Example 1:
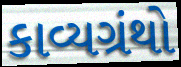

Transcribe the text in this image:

કાવ્યગ્રંથો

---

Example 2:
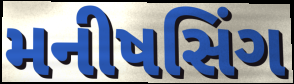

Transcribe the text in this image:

મનીષસિંગ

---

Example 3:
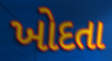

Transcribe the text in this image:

ખોદતા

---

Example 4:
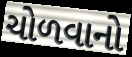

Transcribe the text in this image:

ચોળવાનો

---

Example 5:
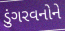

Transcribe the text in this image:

ડુંગરવનોને